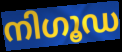
നിഗൂഡ